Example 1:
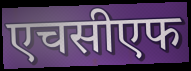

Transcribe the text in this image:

एचसीएफ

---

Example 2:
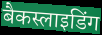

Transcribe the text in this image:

बैकस्लाइडिंग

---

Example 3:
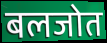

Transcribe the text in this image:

बलजोत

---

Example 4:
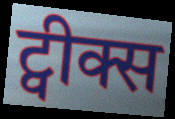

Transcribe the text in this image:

ट्वीक्स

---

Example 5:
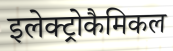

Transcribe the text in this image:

इलेक्ट्रोकैमिकल